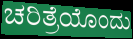
ಚರಿತ್ರೆಯೊಂದು